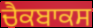
ਚੈਕਬਾਕਸ